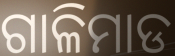
ଗାଳିମାଡ